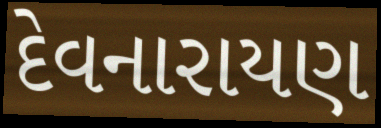
દેવનારાયણ